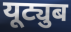
यूट्युब